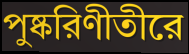
পুষ্করিণীতীরে